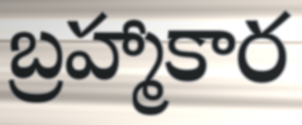
బ్రహ్మాకార